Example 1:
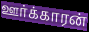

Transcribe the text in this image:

ஊர்க்காரன்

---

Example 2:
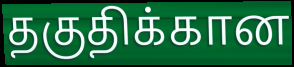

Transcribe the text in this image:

தகுதிக்கான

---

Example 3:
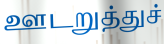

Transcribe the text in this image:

ஊடறுத்துச்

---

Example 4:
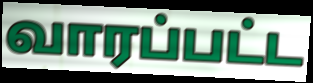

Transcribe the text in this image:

வாரப்பட்ட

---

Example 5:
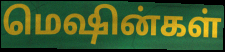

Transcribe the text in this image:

மெஷின்கள்